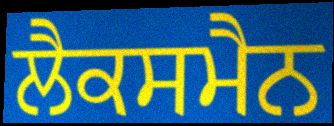
ਲੈਕਸਮੈਨ